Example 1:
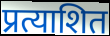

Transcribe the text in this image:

प्रत्याशित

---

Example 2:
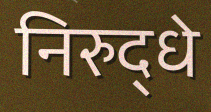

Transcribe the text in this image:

निरुद्धे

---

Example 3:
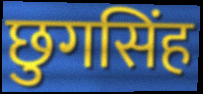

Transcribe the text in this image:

छुगसिंह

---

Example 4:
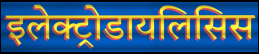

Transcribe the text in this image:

इलेक्ट्रोडायलिसिस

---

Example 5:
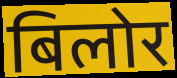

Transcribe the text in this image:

बिलोर